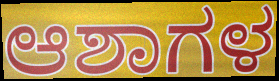
ಆಶಾಗಳ